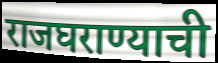
राजघराण्याची